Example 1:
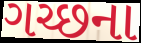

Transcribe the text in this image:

ગચ્છના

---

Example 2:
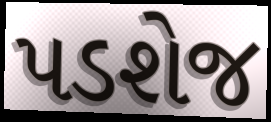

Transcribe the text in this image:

પડશેજ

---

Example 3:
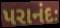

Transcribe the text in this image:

પરાનંદઃ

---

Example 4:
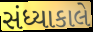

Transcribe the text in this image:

સંધ્યાકાલે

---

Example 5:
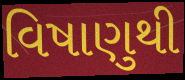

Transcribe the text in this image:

વિષાણુથી